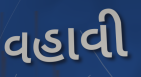
વહાવી